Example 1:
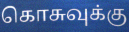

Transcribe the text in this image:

கொசுவுக்கு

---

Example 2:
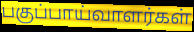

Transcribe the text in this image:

பகுப்பாய்வாளர்கள்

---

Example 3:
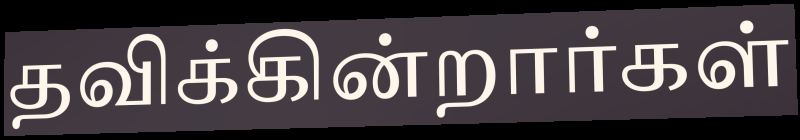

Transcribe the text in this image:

தவிக்கின்றார்கள்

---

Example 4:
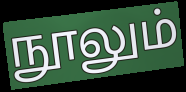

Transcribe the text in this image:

நூலும்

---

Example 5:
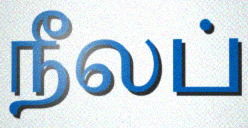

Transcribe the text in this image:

நீலப்